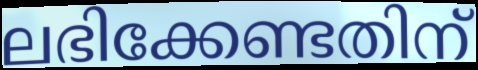
ലഭിക്കേണ്ടതിന്